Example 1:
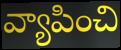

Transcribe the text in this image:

వ్యాపించి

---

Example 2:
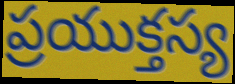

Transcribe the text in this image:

ప్రయుక్తస్య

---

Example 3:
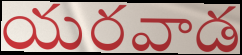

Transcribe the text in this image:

యరవాడ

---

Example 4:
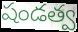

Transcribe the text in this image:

షండత్వ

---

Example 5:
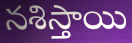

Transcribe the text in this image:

నశిస్తాయి